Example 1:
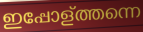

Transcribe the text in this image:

ഇപ്പോള്ത്തന്നെ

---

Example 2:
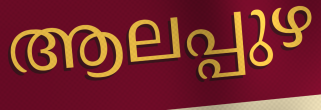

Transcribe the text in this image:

ആലപ്പുഴ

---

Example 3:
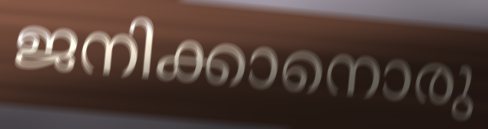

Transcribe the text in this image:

ജനിക്കാനൊരു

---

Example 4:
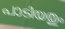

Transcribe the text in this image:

പാടിയതും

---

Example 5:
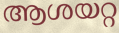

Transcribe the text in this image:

ആശയറ്റ